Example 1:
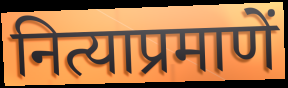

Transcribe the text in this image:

नित्याप्रमाणें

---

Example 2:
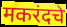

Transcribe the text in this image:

मकरंदचे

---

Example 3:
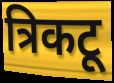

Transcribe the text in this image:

त्रिकटू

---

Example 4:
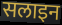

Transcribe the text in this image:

सलाइन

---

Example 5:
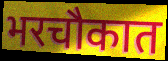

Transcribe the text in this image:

भरचौकात